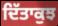
ਦਿੱਤਾਕੁਝ